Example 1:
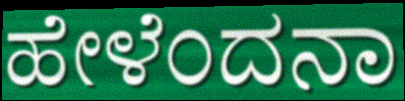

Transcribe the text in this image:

ಹೇಳೆಂದನಾ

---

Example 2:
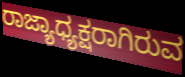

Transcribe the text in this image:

ರಾಜ್ಯಾಧ್ಯಕ್ಷರಾಗಿರುವ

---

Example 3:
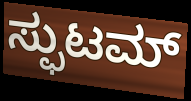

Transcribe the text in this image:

ಸ್ಫುಟಮ್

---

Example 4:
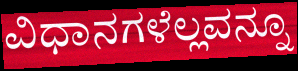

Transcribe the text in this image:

ವಿಧಾನಗಳೆಲ್ಲವನ್ನೂ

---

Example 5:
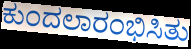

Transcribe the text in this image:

ಕುಂದಲಾರಂಭಿಸಿತು